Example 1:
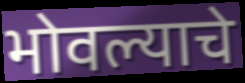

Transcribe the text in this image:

भोवल्याचे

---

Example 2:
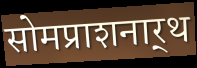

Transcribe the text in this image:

सोमप्राशनार्थ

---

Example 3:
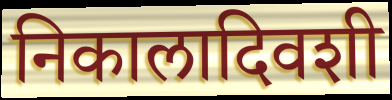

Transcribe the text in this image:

निकालादिवशी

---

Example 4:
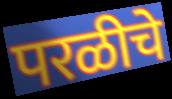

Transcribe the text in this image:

परळीचे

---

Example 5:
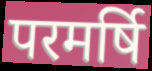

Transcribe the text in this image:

परमर्षि